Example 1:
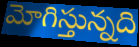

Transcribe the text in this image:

మోగిస్తున్నది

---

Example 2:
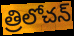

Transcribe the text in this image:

త్రిలోచన్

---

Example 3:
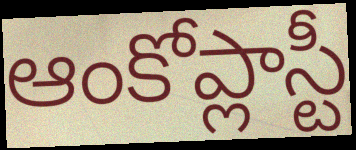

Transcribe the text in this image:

ఆంకోప్లాస్టీ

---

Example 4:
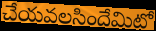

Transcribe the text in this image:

చేయవలసిందేమిటో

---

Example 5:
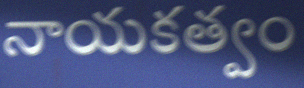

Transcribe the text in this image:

నాయకత్వం